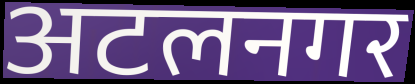
अटलनगर